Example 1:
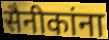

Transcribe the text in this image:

सैनीकांना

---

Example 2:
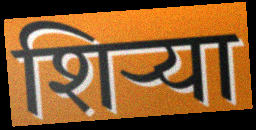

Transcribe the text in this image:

शिर्‍या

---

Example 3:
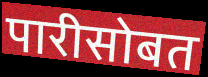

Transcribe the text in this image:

पारीसोबत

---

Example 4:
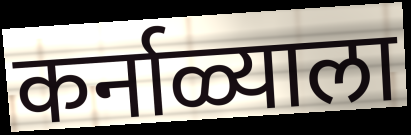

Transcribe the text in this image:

कर्नाळ्याला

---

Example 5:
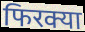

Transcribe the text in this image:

फिरक्या